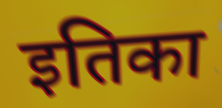
इतिका